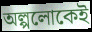
অল্পলোকেই